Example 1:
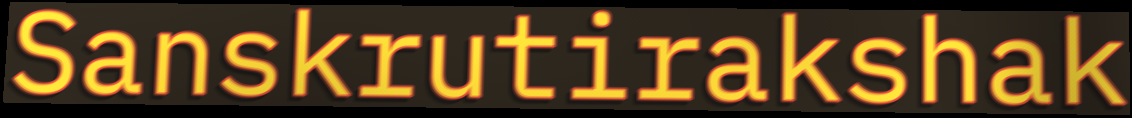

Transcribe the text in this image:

Sanskrutirakshak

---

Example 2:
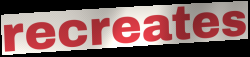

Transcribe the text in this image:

recreates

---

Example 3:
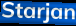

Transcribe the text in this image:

Starjan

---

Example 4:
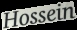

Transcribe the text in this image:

Hossein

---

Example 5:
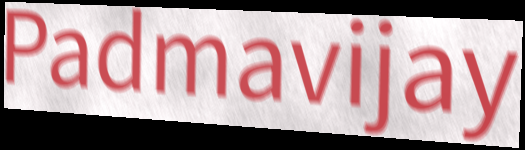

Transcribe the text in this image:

Padmavijay